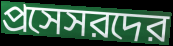
প্রসেসরদের